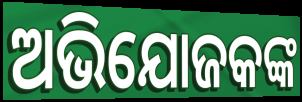
ଅଭିଯୋଜକଙ୍କ